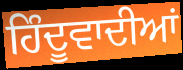
ਹਿੰਦੂਵਾਦੀਆਂ